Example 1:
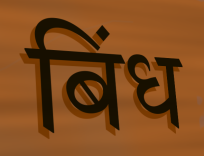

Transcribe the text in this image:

बिंध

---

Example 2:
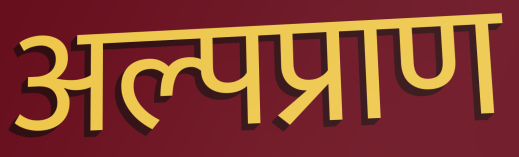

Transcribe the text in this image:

अल्पप्राण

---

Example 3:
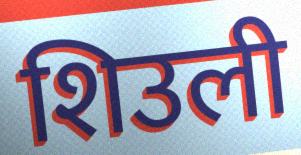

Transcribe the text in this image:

शिउली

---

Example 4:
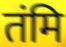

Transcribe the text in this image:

तंमि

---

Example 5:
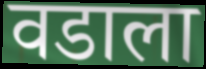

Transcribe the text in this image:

वडाला